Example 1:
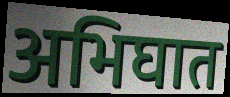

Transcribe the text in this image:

अभिघात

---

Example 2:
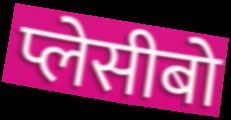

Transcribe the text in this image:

प्लेसीबो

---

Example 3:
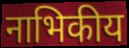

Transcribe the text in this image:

नाभिकीय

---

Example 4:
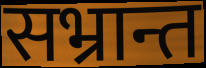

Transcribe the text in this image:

सभ्रान्त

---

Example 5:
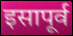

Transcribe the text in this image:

इसापूर्व